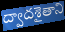
ద్వాదశైతాని